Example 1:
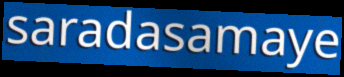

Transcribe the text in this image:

saradasamaye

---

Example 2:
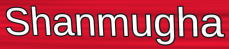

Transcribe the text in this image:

Shanmugha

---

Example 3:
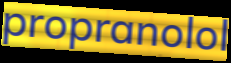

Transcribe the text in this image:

propranolol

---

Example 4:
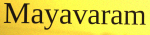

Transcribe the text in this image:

Mayavaram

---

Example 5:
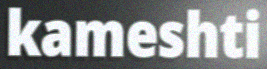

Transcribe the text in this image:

kameshti